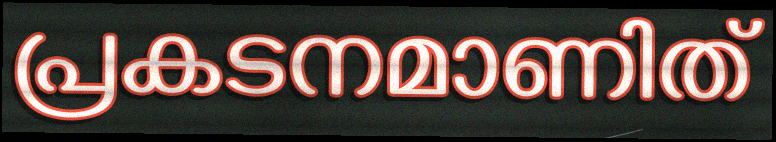
പ്രകടനമാണിത്